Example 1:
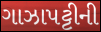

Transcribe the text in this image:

ગાઝાપટ્ટીની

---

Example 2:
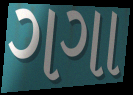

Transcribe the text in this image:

ગગા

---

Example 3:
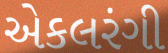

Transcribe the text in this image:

એકલરંગી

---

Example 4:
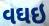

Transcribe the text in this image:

વઘઇ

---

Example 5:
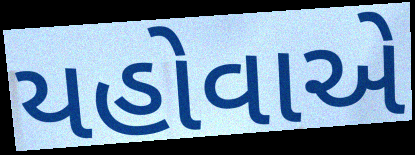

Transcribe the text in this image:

યહોવાએ